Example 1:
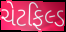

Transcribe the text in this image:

ચેટફિલ્ડ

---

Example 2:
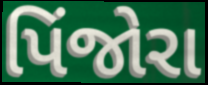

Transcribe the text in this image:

પિંજોરા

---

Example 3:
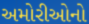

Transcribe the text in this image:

અમોરીઓનો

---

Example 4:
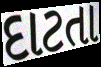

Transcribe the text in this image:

દાટતા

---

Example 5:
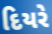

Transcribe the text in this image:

દિયરે